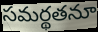
సమర్థతనూ